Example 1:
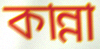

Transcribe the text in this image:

কান্না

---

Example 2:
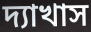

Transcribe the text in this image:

দ্যাখাস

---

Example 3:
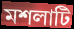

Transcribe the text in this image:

মশলাটি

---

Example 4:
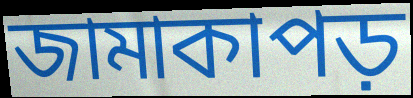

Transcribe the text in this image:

জামাকাপড়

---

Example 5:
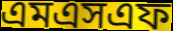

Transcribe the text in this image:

এমএসএফ